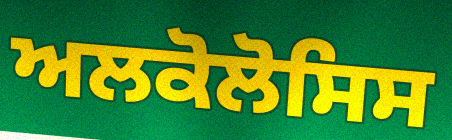
ਅਲਕੋਲੋਸਿਸ